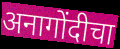
अनागोंदीचा